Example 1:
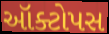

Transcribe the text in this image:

ઑક્ટોપસ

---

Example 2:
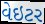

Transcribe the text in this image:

વેઇટર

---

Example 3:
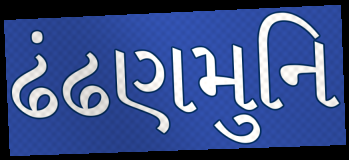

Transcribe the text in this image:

ઢંઢણમુનિ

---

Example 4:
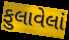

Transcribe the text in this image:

ફુલાવેલાં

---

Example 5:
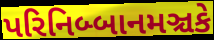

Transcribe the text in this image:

પરિનિબ્બાનમઞ્ચકે